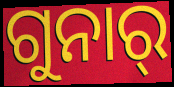
ଗୁନାର୍